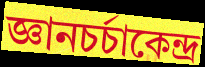
জ্ঞানচর্চাকেন্দ্র